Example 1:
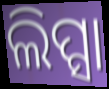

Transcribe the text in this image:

ଲିପ୍ସା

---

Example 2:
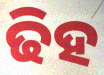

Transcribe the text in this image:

ଢିହ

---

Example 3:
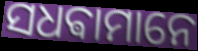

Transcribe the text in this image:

ସଧଵାମାନେ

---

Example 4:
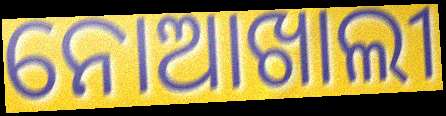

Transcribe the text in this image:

ନୋଆଖାଲୀ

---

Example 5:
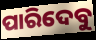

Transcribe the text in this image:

ପାରିଦେବୁ